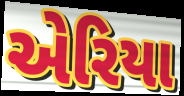
એરિયા